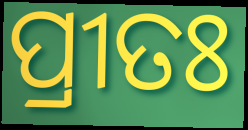
ପ୍ରୀତଃ